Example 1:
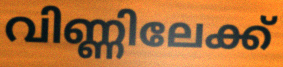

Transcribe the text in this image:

വിണ്ണിലേക്ക്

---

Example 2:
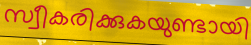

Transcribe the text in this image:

സ്വീകരിക്കുകയുണ്ടായി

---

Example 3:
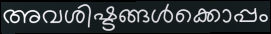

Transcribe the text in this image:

അവശിഷ്ടങ്ങൾക്കൊപ്പം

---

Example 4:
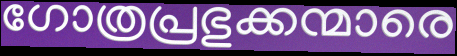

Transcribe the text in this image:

ഗോത്രപ്രഭുക്കന്മാരെ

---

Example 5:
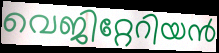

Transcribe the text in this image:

വെജിറ്റേറിയൻ